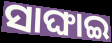
ସାଙ୍ଘାଇ